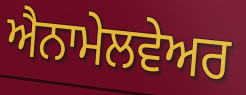
ਐਨਾਮੇਲਵੇਅਰ